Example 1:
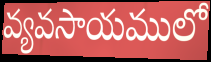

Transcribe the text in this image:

వ్యవసాయములో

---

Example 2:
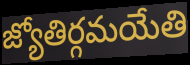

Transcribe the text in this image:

జ్యోతిర్గమయేతి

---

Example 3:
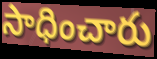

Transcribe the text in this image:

సాధించారు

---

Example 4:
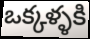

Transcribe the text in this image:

ఒక్కళ్ళకి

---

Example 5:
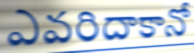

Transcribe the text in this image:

ఎవరిదాకానో